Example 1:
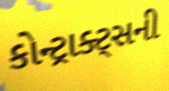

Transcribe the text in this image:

કોન્ટ્રાક્ટ્સની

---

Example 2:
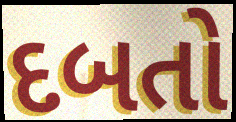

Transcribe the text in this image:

દબતો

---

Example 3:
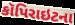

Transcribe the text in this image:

કૉપિરાઇટના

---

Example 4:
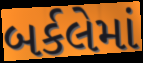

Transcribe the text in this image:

બર્કલેમાં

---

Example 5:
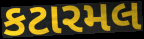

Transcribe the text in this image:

કટારમલ